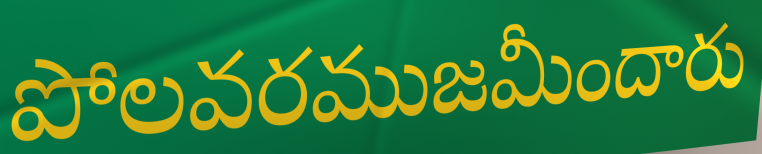
పోలవరముజమీందారు